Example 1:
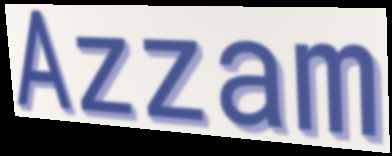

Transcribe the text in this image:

Azzam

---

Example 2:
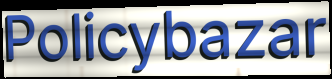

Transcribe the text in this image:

Policybazar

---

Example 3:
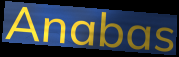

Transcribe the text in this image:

Anabas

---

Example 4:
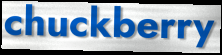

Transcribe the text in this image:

chuckberry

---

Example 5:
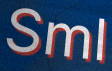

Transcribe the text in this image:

Sml